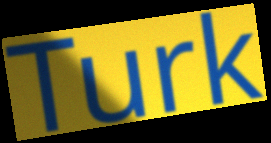
Turk